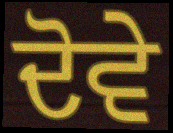
ਦੋਵੇ